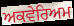
ਅਕਵੇਰਿਅਮ